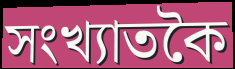
সংখ্যাতকৈ